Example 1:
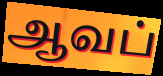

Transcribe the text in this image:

ஆவப்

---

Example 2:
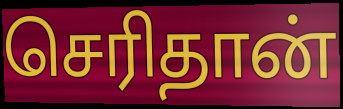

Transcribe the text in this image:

செரிதான்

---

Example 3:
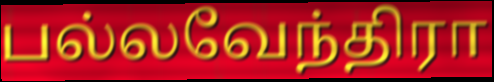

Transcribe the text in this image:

பல்லவேந்திரா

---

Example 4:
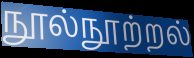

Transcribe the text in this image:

நூல்நூற்றல்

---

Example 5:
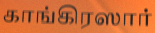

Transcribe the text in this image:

காங்கிரஸார்